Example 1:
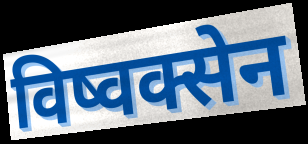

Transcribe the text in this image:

विष्वक्सेन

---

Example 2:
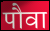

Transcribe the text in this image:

पौवा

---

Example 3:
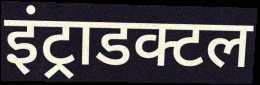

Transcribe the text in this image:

इंट्राडक्टल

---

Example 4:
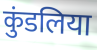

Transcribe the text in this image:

कुंडलिया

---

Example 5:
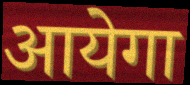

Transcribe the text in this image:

आयेगा